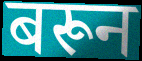
बरून